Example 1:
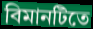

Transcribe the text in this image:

বিমানটিতে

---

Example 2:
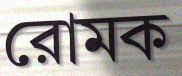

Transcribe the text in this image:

রোমক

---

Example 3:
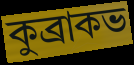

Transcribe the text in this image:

কুব্রাকভ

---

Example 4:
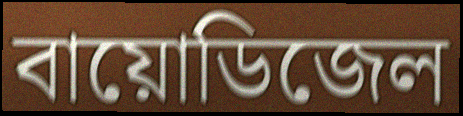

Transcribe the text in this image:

বায়োডিজেল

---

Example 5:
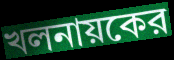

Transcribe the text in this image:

খলনায়কের